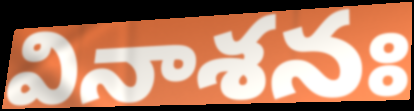
వినాశనః